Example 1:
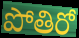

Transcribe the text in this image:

పోతిరో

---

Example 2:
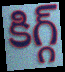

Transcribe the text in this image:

కిగ్గ్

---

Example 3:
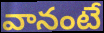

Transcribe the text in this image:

వానంటే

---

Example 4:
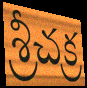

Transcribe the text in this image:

శ్రీచక్ర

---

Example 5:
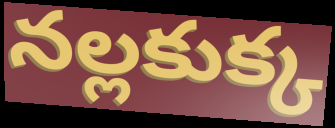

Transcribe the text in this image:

నల్లకుక్క